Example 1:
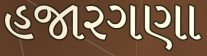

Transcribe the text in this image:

હજારગણા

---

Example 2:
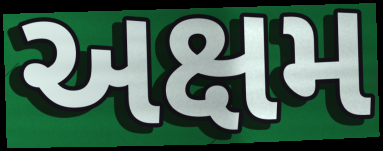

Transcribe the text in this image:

અક્ષમ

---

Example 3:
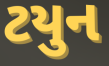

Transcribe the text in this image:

ટયુન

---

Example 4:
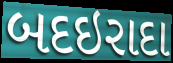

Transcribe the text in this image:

બદઇરાદા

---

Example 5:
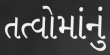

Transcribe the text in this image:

તત્વોમાંનું